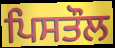
ਪਿਸਤੌਲ